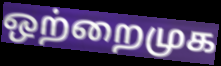
ஒற்றைமுக